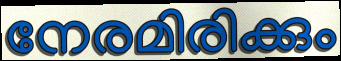
നേരമിരിക്കും